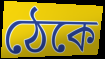
ঠেকে